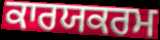
ਕਾਰਯਕਰਮ